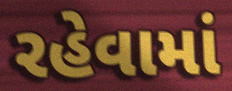
રહેવામાં